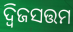
ଦ୍ୱିଜସତ୍ତମ